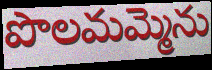
పొలమమ్మెను